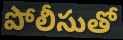
పోలీసుతో